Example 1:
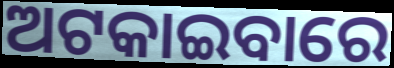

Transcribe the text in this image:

ଅଟକାଇବାରେ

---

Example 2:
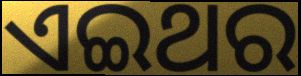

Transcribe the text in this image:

ଏଇଥର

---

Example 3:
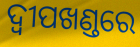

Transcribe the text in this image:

ଦ୍ଵୀପଖଣ୍ଡରେ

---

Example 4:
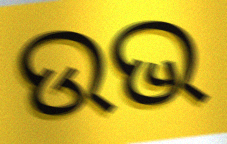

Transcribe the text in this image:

ଉଭ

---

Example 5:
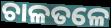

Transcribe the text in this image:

ଚାଳତଳେ